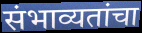
संभाव्यतांचा